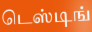
டெஸ்டிங்